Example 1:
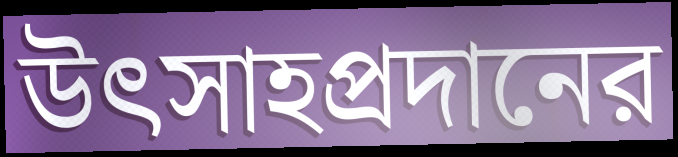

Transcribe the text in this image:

উৎসাহপ্রদানের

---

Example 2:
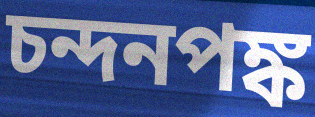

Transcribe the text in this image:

চন্দনপঙ্ক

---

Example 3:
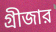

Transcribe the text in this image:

গ্রীজার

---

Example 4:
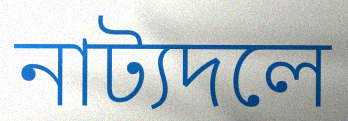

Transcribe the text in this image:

নাট্যদলে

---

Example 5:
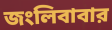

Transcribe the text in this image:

জংলিবাবার